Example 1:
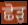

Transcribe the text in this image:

ਛੋੜੁ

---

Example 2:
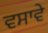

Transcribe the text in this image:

ਵਸਾਵੇ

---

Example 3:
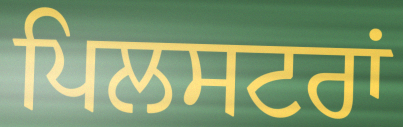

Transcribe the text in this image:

ਪਿਲਸਟਰਾਂ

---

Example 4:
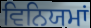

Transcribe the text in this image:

ਵਿਨਿਯਮਾਂ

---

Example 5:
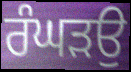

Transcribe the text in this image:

ਰੰਘੜਉ